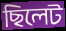
ছিলেট